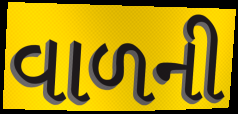
વાળની